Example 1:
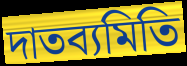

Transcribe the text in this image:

দাতব্যমিতি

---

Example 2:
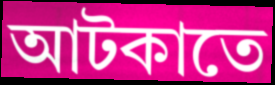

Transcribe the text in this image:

আটকাতে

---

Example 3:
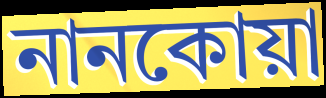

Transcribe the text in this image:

নানকোয়া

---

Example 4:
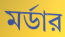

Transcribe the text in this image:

মর্ডার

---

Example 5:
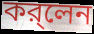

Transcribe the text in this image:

কর্‌লেন